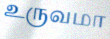
உருவமா